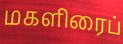
மகளிரைப்